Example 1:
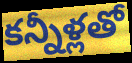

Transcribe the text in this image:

కన్నీళ్లతో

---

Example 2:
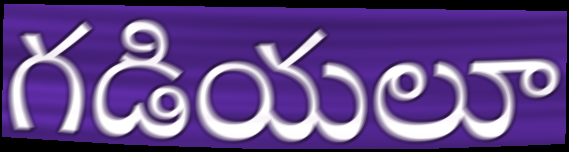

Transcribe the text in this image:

గడియలూ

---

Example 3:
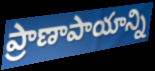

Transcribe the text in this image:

ప్రాణాపాయాన్ని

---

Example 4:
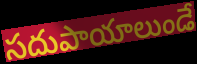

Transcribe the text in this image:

సదుపాయాలుండే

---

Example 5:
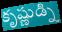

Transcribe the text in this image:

కృష్ణుడ్ని